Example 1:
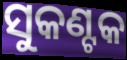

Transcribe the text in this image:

ସୁକଣ୍ଟକ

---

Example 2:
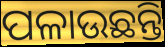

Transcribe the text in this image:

ପଳାଉଛନ୍ତି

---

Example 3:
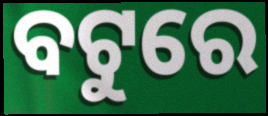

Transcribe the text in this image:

ବଟୁରେ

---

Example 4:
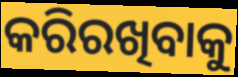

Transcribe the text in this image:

କରିରଖିବାକୁ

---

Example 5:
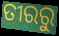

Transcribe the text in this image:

ତୀରରୁ